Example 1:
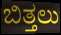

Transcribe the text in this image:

ಬಿತ್ತಲು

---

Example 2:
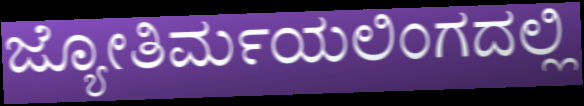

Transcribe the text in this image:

ಜ್ಯೋತಿರ್ಮಯಲಿಂಗದಲ್ಲಿ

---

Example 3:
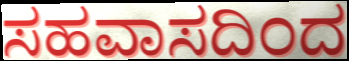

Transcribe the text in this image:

ಸಹವಾಸದಿಂದ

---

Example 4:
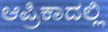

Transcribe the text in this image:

ಆಪ್ರಿಕಾದಲ್ಲಿ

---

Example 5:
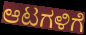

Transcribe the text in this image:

ಆಟಗಳಿಗೆ